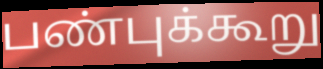
பண்புக்கூறு